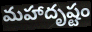
మహాదృష్టం